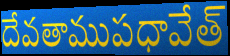
దేవతాముపధావేత్